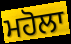
ਮਹੋਲਾ